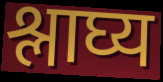
श्लाघ्य